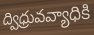
ద్విధ్రువవ్యాధికి